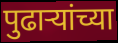
पुढार्‍यांच्या